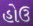
હોઉ